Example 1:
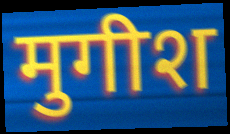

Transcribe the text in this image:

मुगीश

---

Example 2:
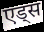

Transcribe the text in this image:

एड्स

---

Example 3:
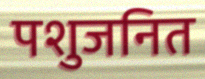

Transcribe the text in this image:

पशुजनित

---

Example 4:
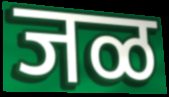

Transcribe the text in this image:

जळ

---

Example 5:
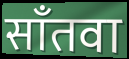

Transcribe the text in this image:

साँतवा